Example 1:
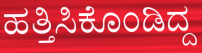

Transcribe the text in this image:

ಹತ್ತಿಸಿಕೊಂಡಿದ್ದ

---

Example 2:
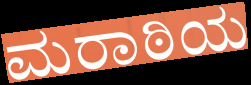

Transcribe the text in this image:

ಮರಾಠಿಯ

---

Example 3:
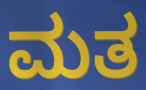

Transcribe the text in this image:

ಮತ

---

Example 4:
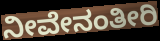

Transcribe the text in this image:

ನೀವೇನಂತೀರಿ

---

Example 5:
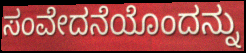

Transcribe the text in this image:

ಸಂವೇದನೆಯೊಂದನ್ನು